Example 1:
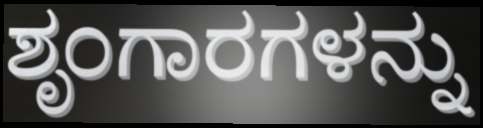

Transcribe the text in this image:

ಶೃಂಗಾರಗಳನ್ನು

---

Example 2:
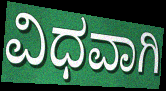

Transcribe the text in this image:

ವಿಧವಾಗಿ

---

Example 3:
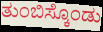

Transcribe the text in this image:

ತುಂಬಿಸ್ಕೊಂಡು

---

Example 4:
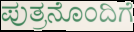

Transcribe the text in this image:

ಪುತ್ರನೊಂದಿಗೆ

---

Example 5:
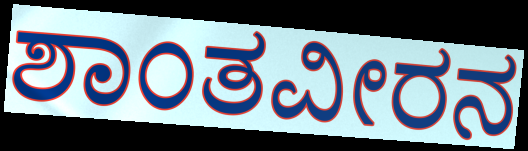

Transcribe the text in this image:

ಶಾಂತವೀರನ